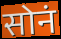
सोनं